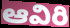
ఆవిరి